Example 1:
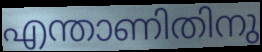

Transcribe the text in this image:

എന്താണിതിനു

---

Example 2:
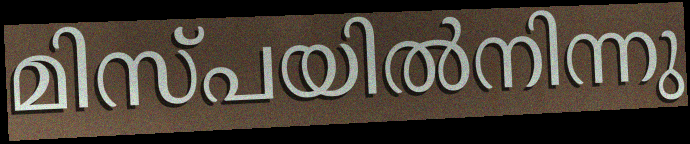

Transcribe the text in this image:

മിസ്പയിൽനിന്നു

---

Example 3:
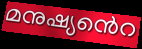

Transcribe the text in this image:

മനുഷ്യൻെറ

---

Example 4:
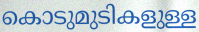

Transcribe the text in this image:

കൊടുമുടികളുള്ള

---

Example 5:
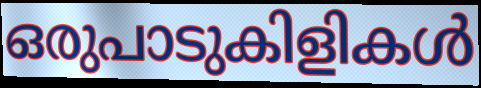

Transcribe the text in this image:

ഒരുപാടുകിളികൾ